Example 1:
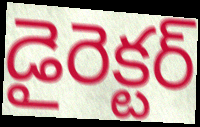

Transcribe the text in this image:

డైరెక్టర్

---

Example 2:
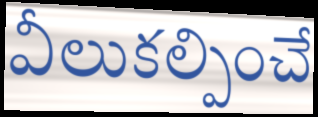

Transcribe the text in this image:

వీలుకల్పించే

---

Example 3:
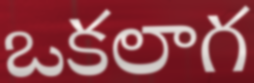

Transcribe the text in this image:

ఒకలాగ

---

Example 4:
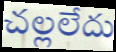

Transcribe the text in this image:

చల్లలేదు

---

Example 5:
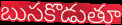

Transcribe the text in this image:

బుసకొడుతూ